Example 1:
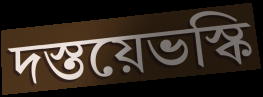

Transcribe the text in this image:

দস্তয়েভস্কি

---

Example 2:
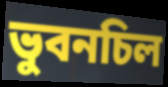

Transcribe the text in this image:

ভুবনচিল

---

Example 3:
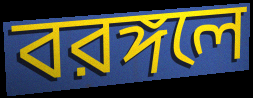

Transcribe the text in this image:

বরঙ্গলে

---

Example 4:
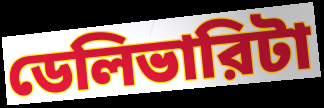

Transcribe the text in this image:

ডেলিভারিটা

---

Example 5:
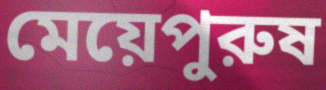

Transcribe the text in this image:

মেয়েপুরুষ